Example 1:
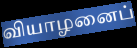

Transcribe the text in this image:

வியாழனைப்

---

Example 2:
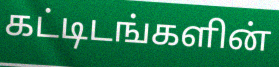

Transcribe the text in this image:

கட்டிடங்களின்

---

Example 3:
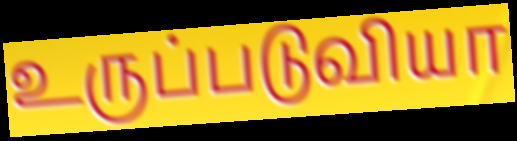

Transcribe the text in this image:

உருப்படுவியா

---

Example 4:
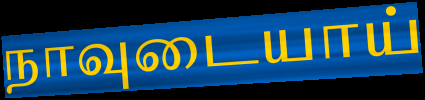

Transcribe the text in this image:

நாவுடையாய்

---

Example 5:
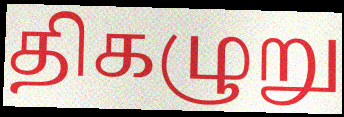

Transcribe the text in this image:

திகழுறு